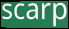
scarp